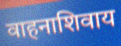
वाहनाशिवाय